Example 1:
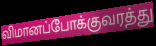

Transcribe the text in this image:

விமானப்போக்குவரத்து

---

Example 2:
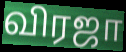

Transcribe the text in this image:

விரஜா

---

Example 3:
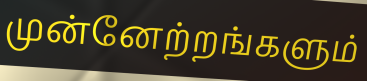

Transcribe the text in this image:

முன்னேற்றங்களும்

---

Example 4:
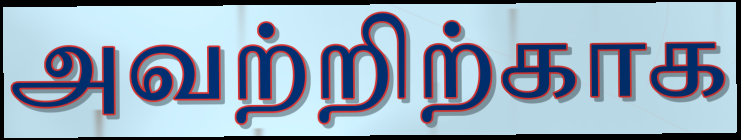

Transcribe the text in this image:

அவற்றிற்காக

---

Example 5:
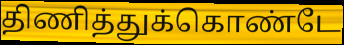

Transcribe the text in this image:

திணித்துக்கொண்டே